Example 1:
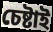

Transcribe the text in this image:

চেষ্টাই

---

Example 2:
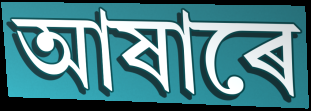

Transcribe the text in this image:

আষাৰে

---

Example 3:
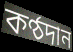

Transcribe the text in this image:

কণ্ঠদান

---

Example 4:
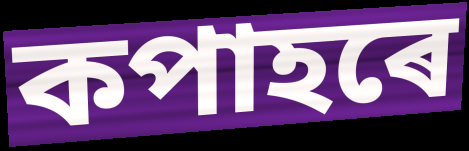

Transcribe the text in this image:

কপাহৰে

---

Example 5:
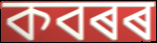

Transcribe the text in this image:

কবৰৰ